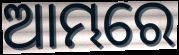
ଆମ୍ଭରେ